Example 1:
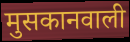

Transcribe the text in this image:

मुसकानवाली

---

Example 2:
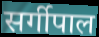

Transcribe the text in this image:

सर्गीपाल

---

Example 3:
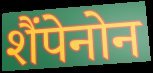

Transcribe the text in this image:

शैंपेनोन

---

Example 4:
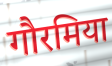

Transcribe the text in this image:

गौरमिया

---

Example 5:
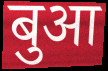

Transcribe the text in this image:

बुआ